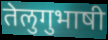
तेलुगुभाषी